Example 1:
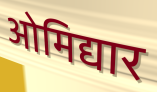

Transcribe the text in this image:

ओमिद्यार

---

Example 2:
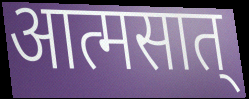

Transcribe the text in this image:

आत्मसात्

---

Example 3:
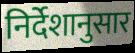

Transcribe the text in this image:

निर्देशानुसार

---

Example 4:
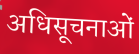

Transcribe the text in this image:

अधिसूचनाओं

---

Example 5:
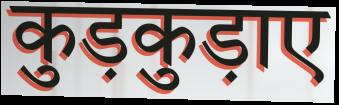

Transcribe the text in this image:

कुड़कुड़ाए